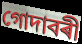
গোদাবৰী